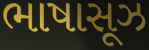
ભાષાસૂઝ